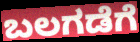
ಬಲಗಡೆಗೆ